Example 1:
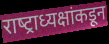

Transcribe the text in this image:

राष्ट्राध्यक्षांकडून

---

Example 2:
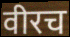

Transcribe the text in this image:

वीरच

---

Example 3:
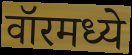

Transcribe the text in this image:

वॉरमध्ये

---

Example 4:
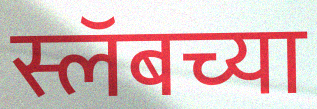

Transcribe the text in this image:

स्लॅबच्या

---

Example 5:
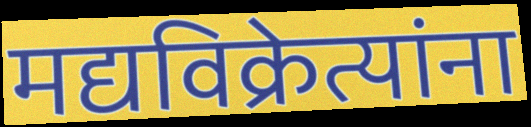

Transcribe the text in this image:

मद्यविक्रेत्यांना